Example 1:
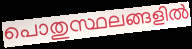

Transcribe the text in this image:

പൊതുസ്ഥലങ്ങളിൽ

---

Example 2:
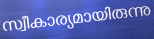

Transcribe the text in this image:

സ്വീകാര്യമായിരുന്നു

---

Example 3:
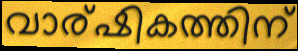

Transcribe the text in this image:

വാര്ഷികത്തിന്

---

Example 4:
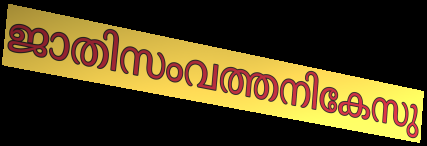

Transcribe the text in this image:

ജാതിസംവത്തനികേസു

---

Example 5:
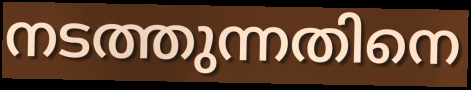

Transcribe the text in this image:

നടത്തുന്നതിനെ